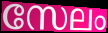
സേലം